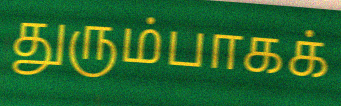
துரும்பாகக்